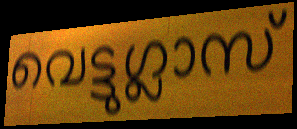
വെട്ടുഗ്ലാസ്